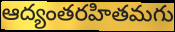
ఆద్యంతరహితమగు